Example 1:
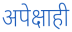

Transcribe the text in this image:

अपेक्षाही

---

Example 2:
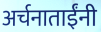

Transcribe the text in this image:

अर्चनाताईंनी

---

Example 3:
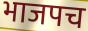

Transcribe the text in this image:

भाजपच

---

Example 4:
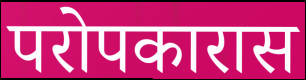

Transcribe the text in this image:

परोपकारास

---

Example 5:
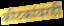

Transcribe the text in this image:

कीटकांवरही